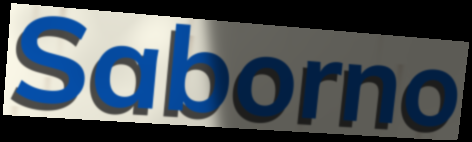
Saborno